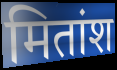
मितांश